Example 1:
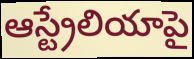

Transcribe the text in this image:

ఆస్ట్రేలియాపై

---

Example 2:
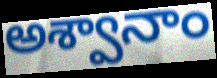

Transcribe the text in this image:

అశ్వానాం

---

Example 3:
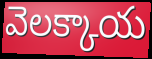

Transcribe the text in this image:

వెలక్కాయ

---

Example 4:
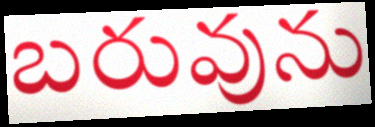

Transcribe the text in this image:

బరువును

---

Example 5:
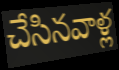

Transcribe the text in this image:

చేసినవాళ్ల